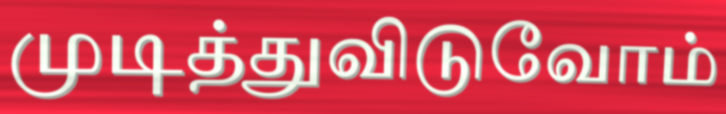
முடித்துவிடுவோம்